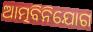
ଆତ୍ମବିନିଯୋଗ